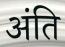
अंति